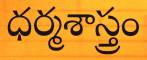
ధర్మశాస్త్రం